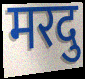
मरदु